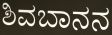
ಶಿವಬಾನನ